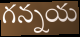
గన్నయ